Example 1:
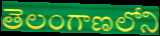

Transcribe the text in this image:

తెలంగాణలోని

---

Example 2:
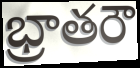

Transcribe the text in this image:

భ్రాతరౌ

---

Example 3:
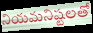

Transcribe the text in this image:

నియమనిష్టలతో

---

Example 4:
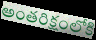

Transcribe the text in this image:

అంతరిక్షంలోకి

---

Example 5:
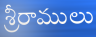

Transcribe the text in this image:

శ్రీరాములు